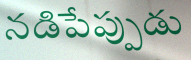
నడిపేప్పుడు